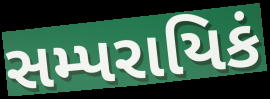
સમ્પરાયિકં